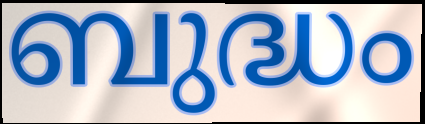
ബുദ്ധം